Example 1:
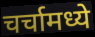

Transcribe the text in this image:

चर्चामध्ये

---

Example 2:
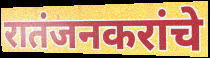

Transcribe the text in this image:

रातंजनकरांचे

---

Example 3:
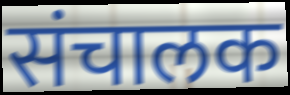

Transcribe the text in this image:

संचालक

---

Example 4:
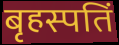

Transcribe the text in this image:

बृहस्पतिं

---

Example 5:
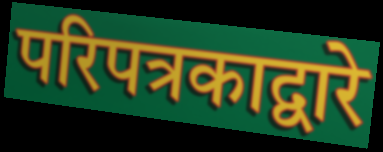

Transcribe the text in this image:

परिपत्रकाद्वारे